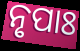
ନୃପାଃ